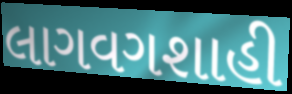
લાગવગશાહી